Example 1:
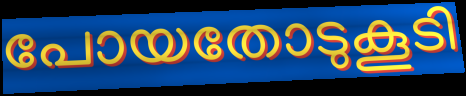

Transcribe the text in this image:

പോയതോടുകൂടി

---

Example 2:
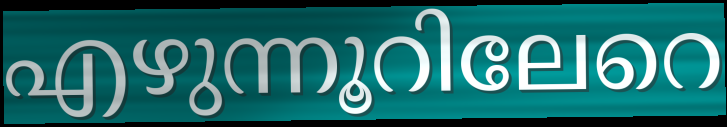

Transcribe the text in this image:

എഴുന്നൂറിലേറെ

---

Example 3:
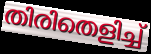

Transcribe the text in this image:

തിരിതെളിച്ച്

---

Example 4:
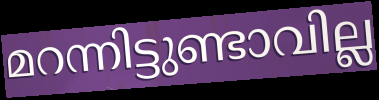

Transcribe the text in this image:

മറന്നിട്ടുണ്ടാവില്ല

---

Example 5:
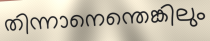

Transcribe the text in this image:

തിന്നാനെന്തെങ്കിലും